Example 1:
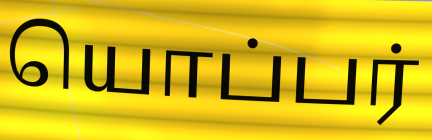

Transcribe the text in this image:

யொப்பர்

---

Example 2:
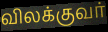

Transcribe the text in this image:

விலக்குவர்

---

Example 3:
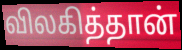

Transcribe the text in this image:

விலகித்தான்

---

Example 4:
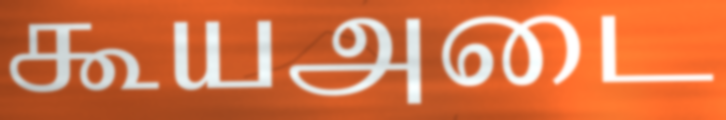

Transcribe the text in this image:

கூயஅடை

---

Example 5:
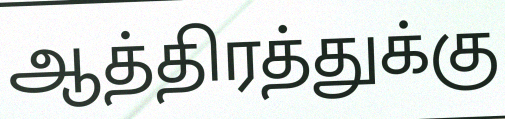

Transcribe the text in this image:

ஆத்திரத்துக்கு